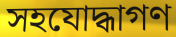
সহযোদ্ধাগণ